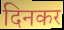
दिनकर